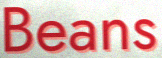
Beans